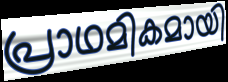
പ്രാഥമികമായി